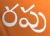
రపు